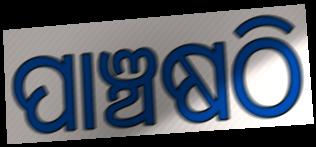
ପାଞ୍ଚଷଠି